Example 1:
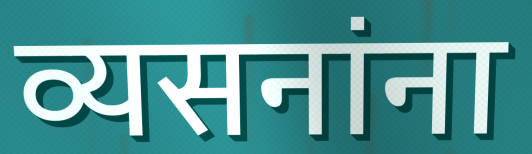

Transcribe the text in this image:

व्यसनांना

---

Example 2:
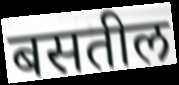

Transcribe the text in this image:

बसतील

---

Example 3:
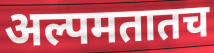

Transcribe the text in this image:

अल्पमतातच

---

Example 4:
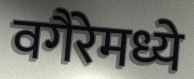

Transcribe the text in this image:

वगैरेमध्ये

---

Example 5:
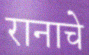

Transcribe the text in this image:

रानाचे